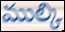
ముల్కి